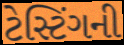
ટેસ્ટિંગની